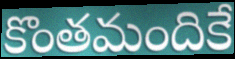
కొంతమందికే